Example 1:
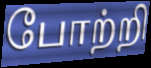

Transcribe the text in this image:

போற்றி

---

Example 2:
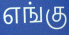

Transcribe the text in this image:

எங்கு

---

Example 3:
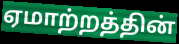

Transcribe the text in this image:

ஏமாற்றத்தின்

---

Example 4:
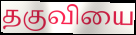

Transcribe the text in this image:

தகுவியை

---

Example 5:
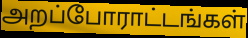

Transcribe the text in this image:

அறப்போராட்டங்கள்